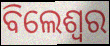
ବିଲେଶ୍ଵର